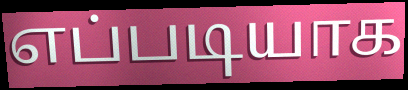
எப்படியாக